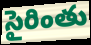
సైరింతు